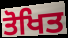
ਤੋਖਿਤ